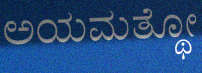
ಅಯಮತ್ಥೋ